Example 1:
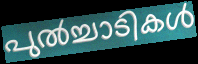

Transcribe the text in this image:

പുൽച്ചാടികൾ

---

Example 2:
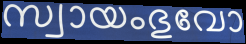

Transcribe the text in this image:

സ്വായംഭുവോ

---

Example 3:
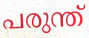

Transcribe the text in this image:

പരുന്ത്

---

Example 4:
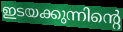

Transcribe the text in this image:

ഇടയക്കുന്നിന്റെ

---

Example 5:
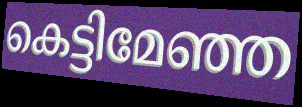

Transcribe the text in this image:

കെട്ടിമേഞ്ഞ